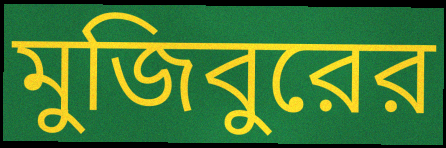
মুজিবুরের